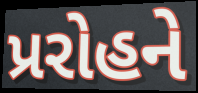
પ્રરોહને